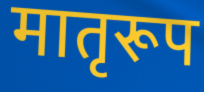
मातृरूप